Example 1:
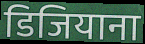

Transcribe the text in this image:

डिजियाना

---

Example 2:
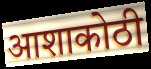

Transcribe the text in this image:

आशाकोठी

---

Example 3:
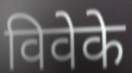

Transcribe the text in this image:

विवेके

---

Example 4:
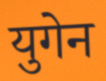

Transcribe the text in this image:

युगेन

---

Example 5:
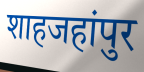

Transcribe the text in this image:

शाहजहांपुर